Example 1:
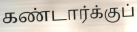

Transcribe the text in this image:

கண்டார்க்குப்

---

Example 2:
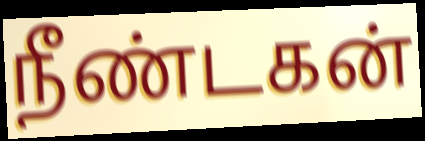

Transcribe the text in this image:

நீண்டகன்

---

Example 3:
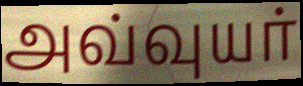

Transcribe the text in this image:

அவ்வுயர்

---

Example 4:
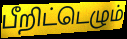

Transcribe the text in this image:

பீறிட்டெழும்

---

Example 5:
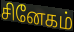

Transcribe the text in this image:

சினேகம்